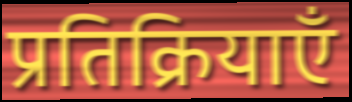
प्रतिक्रियाएँ